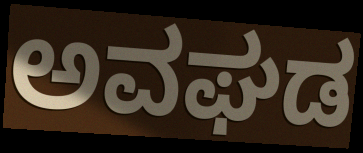
ಅವಘಡ